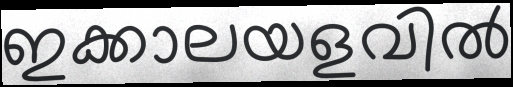
ഇക്കാലയളവിൽ